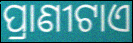
ପ୍ରାଣୀଟାଏ